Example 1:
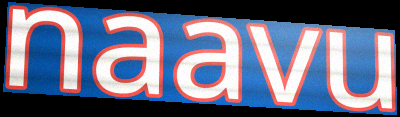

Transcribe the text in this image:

naavu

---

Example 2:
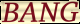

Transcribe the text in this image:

BANG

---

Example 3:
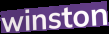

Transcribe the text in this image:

winston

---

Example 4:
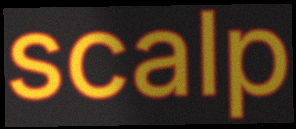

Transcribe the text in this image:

scalp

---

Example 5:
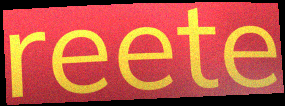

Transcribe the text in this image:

reete